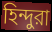
হিন্দুরা